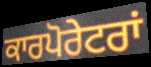
ਕਾਰਪੋਰੇਟਰਾਂ